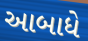
આબાધે